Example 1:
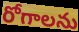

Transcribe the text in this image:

రోగాలను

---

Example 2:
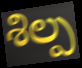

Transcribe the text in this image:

శిల్ప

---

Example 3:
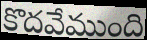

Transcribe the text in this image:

కొదవేముంది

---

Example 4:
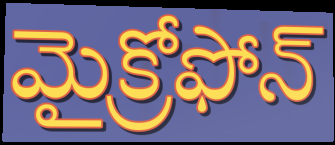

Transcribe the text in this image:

మైక్రోఫోన్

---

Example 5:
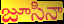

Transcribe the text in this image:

జూసినా